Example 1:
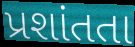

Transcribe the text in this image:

પ્રશાંતતા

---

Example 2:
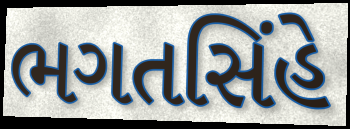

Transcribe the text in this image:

ભગતસિંહે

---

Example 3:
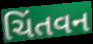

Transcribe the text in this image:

ચિંતવન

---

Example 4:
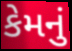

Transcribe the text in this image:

કેમનું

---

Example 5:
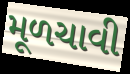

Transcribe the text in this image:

મૂળચાવી